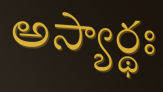
అస్యార్థః